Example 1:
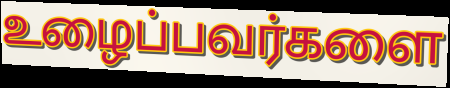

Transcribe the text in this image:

உழைப்பவர்களை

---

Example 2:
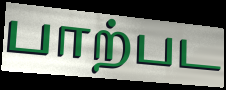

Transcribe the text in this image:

பாற்பட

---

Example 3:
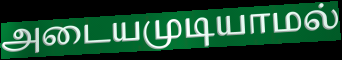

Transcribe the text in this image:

அடையமுடியாமல்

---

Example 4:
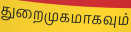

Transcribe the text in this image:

துறைமுகமாகவும்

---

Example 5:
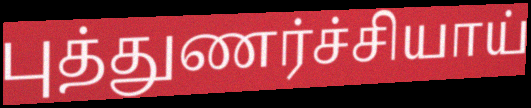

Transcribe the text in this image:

புத்துணர்ச்சியாய்